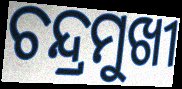
ଚନ୍ଦ୍ରମୁଖୀ